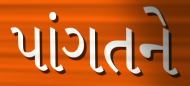
પાંગતને